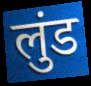
लुंड